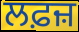
ਲਫ਼ਜ਼